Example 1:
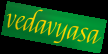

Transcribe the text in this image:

vedavyasa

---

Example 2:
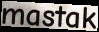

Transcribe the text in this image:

mastak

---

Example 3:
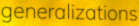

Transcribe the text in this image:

generalizations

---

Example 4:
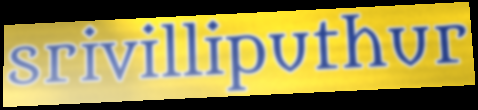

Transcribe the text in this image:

srivilliputhur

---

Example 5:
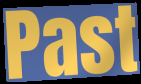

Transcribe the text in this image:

Past